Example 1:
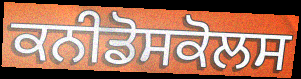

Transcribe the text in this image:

ਕਨੀਡੋਸਕੋਲਸ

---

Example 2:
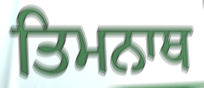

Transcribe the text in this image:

ਤਿਮਨਾਥ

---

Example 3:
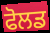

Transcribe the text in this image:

ਫੋਲਡ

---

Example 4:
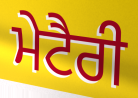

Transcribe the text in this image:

ਮੇਟੈਰੀ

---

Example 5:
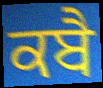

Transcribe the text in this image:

ਕਬੈ